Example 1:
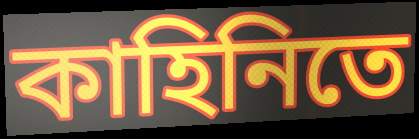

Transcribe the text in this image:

কাহিনিতে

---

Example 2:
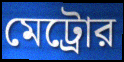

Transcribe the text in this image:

মেট্রোর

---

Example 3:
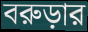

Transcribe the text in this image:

বরুড়ার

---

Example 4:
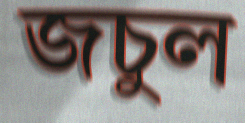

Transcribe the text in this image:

জচুল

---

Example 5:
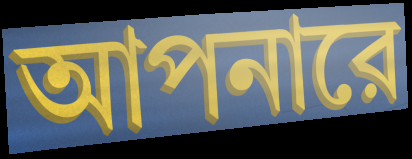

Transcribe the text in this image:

আপনারে